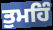
ਤੁਮਹਿੰ